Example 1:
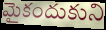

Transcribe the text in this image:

మైకందుకుని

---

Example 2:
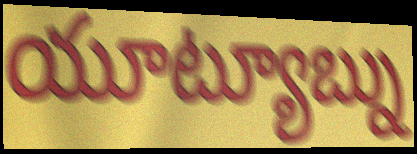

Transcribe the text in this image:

యూట్యూబ్ను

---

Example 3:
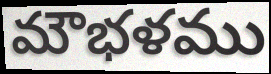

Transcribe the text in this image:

మౌభళము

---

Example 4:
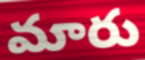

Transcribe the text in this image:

మారు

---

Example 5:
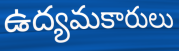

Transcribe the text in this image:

ఉద్యమకారులు